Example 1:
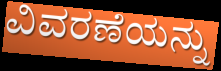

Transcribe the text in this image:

ವಿವರಣೆಯನ್ನು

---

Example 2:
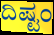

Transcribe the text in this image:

ದಿಷ್ಟಂ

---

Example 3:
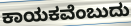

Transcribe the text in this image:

ಕಾಯಕವೆಂಬುದು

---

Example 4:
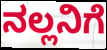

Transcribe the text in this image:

ನಲ್ಲನಿಗೆ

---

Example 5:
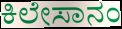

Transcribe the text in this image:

ಕಿಲೇಸಾನಂ